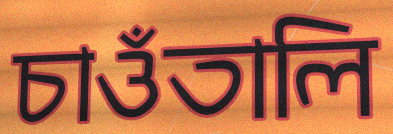
চাওঁতালি